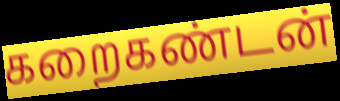
கறைகண்டன்